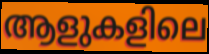
ആളുകളിലെ